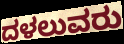
ದಳಲುವರು